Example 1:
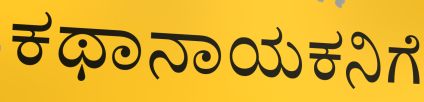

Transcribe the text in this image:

ಕಥಾನಾಯಕನಿಗೆ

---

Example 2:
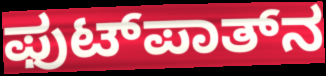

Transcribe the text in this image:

ಫುಟ್‌ಪಾತ್‌ನ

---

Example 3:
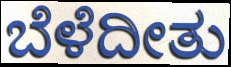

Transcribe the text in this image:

ಬೆಳೆದೀತು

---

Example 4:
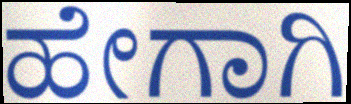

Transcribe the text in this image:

ಹೇಗಾಗಿ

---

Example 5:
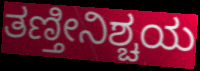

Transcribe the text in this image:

ತಣ್ತೀನಿಶ್ಚಯ